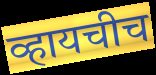
व्हायचीच